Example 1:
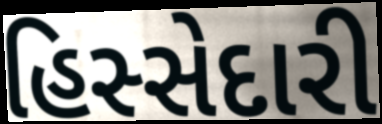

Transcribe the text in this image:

હિસ્સેદારી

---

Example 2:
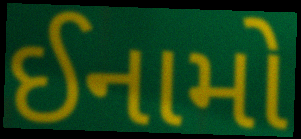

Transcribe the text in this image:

ઈનામો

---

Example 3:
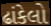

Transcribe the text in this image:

ઢાંકેલો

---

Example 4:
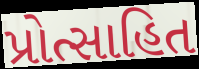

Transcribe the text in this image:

પ્રોત્સાહિત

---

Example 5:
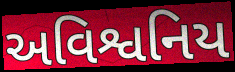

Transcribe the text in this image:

અવિશ્વનિય